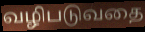
வழிபடுவதை